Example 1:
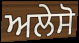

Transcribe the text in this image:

ਅਲੇਸੋ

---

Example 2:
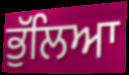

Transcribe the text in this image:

ਭੁੱਲਿਆ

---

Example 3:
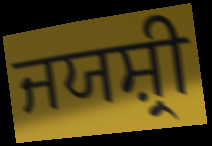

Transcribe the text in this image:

ਜਯਸ਼੍ਰੀ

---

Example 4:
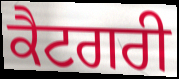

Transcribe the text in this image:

ਕੈਟਗਰੀ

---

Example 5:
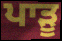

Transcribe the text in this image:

ਪਾੜੂ